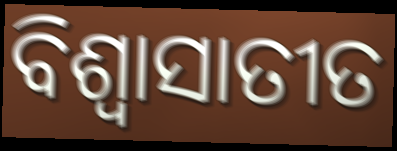
ବିଶ୍ୱାସାତୀତ